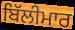
ਬਿੱਲੀਮਾਰ